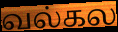
வல்கல